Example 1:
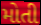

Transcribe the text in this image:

મોતી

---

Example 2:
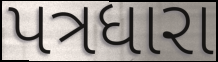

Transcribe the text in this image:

પત્રધારા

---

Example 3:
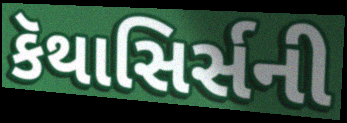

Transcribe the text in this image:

કૅથાસિર્સની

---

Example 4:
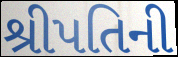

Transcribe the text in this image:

શ્રીપતિની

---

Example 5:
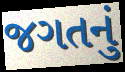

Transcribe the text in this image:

જગતનું